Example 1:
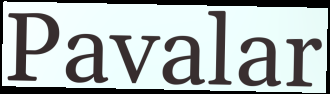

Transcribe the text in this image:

Pavalar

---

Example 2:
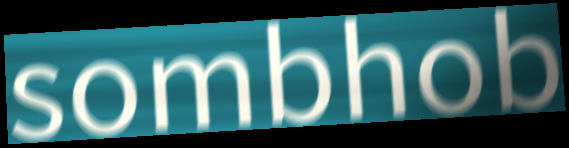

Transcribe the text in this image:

sombhob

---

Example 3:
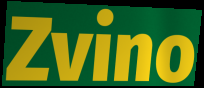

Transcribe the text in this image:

Zvino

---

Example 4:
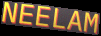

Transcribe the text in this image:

NEELAM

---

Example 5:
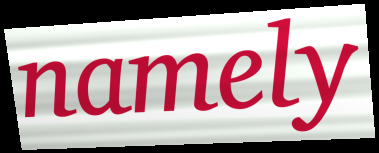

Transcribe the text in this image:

namely